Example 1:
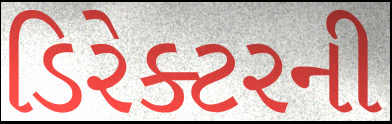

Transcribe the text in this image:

ડિરેક્ટરની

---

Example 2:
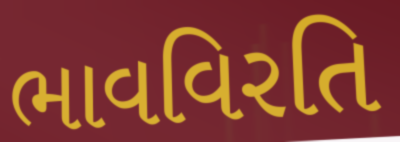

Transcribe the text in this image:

ભાવવિરતિ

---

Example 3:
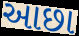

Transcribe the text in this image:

આછા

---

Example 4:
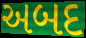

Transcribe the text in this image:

અબદ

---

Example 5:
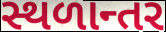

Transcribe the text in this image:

સ્થળાન્તર